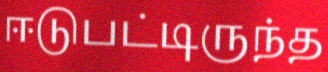
ஈடுபட்டிருந்த